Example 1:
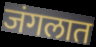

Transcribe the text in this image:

जंगलात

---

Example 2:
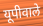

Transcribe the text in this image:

यूपीवाले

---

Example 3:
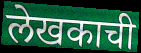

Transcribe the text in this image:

लेखकाची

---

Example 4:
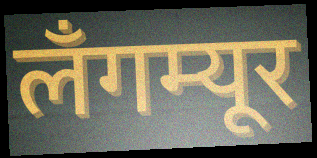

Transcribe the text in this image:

लँगम्यूर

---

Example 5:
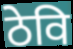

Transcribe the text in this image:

ठेवि